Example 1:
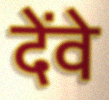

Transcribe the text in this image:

देंवे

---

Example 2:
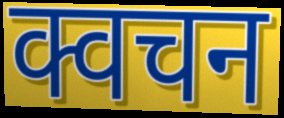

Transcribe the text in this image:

क्वचन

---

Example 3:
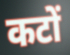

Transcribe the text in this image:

कटों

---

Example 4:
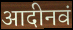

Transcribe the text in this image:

आदीनवं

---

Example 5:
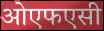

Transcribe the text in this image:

ओएफएसी